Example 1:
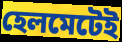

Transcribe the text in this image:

হেলমেটেই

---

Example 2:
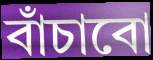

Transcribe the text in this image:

বাঁচাবো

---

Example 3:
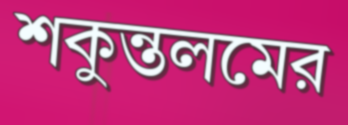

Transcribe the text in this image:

শকুন্তলমের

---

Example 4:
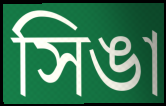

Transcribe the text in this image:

সিঙা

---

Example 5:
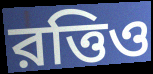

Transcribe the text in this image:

রত্তিও